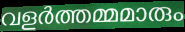
വളർത്തമ്മമാരും